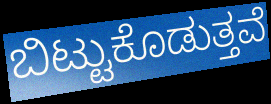
ಬಿಟ್ಟುಕೊಡುತ್ತವೆ